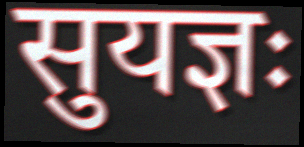
सुयज्ञः